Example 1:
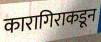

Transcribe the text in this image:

कारागिराकडून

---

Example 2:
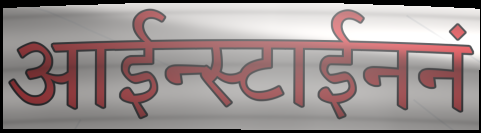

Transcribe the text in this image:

आईन्स्टाईननं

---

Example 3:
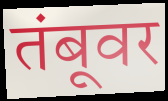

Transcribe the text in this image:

तंबूवर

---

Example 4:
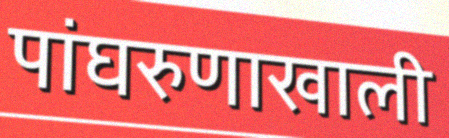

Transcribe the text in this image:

पांघरुणाखाली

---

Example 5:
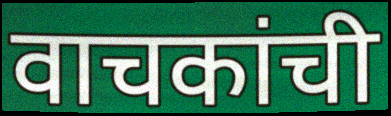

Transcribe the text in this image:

वाचकांची